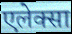
एलेक्सा